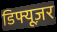
डिफ्यूज़र